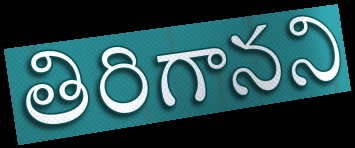
తిరిగానని